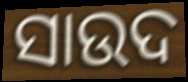
ସାଉଦ